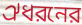
ঐধরনের